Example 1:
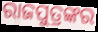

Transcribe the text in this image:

ରାଜପୁତ୍ରଙ୍କର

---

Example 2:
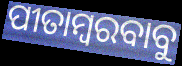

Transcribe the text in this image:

ପୀତାମ୍ବରବାବୁ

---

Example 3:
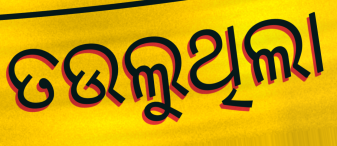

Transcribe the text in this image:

ତଉଲୁଥିଲା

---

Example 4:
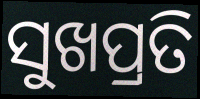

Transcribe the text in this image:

ସୁଖପ୍ରତି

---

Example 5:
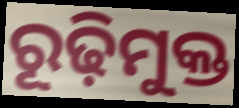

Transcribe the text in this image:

ରୂଢ଼ିମୁକ୍ତ